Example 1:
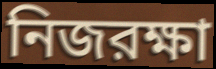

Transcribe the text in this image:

নিজরক্ষা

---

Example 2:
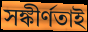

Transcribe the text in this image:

সঙ্কীর্ণতাই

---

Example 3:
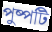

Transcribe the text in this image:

পুষ্পটি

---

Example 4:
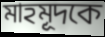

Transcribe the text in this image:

মাহমূদকে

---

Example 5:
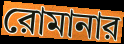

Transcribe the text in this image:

রোমানার